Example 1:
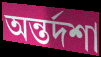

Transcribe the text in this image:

অন্তর্দশা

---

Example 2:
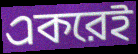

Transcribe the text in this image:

একরেই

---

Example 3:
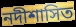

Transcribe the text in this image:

নদীশাসিত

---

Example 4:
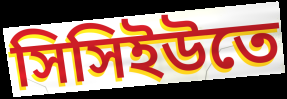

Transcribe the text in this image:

সিসিইউতে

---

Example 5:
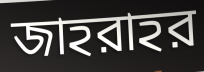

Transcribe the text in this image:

জাহরাহর